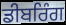
ਡੀਬਰਿੰਗ